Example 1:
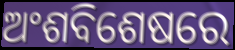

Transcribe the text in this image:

ଅଂଶବିଶେଷରେ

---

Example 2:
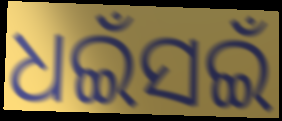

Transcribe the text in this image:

ଧଇଁସଇଁ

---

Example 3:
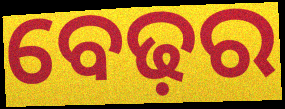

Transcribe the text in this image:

ବେଢ଼ର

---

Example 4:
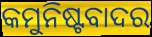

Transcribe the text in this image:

କମୁନିଷ୍ଟବାଦର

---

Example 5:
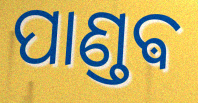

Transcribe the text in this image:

ପାଣ୍ଡଵ